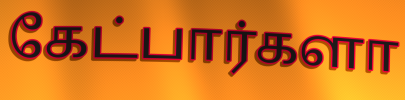
கேட்பார்களா